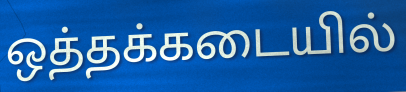
ஒத்தக்கடையில்